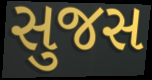
સુજસ